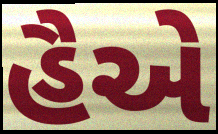
હૈએ